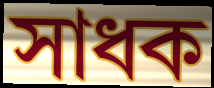
সাধক